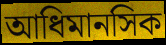
আধিমানসিক